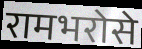
रामभरोसे